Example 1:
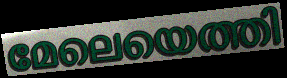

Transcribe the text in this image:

മേലെയെത്തി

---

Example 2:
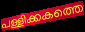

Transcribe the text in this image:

പള്ളിക്കകത്തെ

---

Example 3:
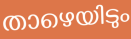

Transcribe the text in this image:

താഴെയിടും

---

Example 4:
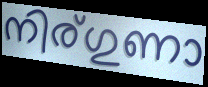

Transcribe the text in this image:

നിര്ഗുണാ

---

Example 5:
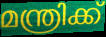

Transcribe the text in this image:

മന്ത്രിക്ക്